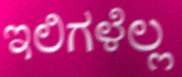
ಇಲಿಗಳೆಲ್ಲ